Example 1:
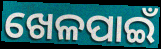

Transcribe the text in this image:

ଖେଳପାଇଁ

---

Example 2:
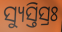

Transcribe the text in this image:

ସ୍ୟୁସ୍ତିସ୍ରଃ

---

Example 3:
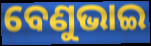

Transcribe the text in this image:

ବେଣୁଭାଇ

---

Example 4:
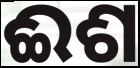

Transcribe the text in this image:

ଈଶ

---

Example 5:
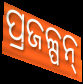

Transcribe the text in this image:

ପ୍ରଜଳ୍ପନ୍